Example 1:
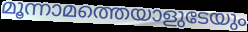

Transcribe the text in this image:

മൂന്നാമത്തെയാളുടേയും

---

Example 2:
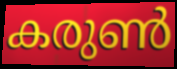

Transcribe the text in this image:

കരുൺ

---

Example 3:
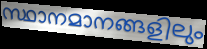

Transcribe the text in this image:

സ്ഥാനമാനങ്ങളിലും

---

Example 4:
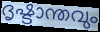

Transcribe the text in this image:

ദൃഷ്ടാന്തവും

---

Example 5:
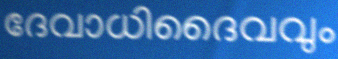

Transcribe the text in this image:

ദേവാധിദൈവവും